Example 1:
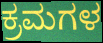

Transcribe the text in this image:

ಕ್ರಮಗಳ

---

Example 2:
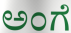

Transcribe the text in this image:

ಅಂಗೆ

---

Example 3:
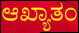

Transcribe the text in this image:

ಆಖ್ಯಾತಂ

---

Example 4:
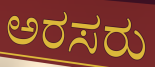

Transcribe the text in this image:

ಅರಸರು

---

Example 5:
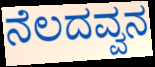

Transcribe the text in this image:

ನೆಲದವ್ವನ